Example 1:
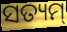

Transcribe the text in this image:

ସତ୍ୟମ୍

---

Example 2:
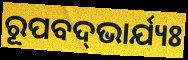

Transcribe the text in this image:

ରୂପବଦ୍‌ଭାର୍ଯ୍ୟଃ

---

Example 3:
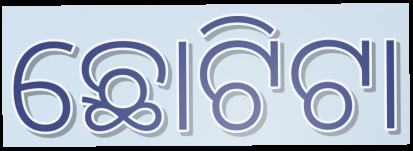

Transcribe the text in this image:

ଛୋଟିଟା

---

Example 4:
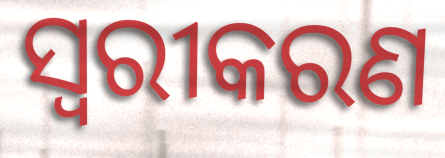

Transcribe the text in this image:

ସ୍ୱରୀକରଣ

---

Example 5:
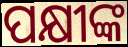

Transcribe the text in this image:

ପକ୍ଷୀଙ୍କ